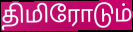
திமிரோடும்